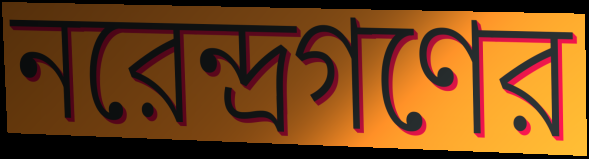
নরেন্দ্রগণের